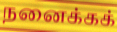
நனைக்கக்